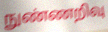
நுண்ணறிவு